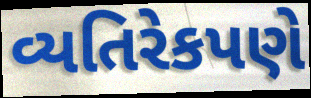
વ્યતિરેકપણે